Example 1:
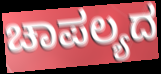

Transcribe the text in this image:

ಚಾಪಲ್ಯದ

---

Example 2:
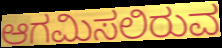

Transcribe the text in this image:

ಆಗಮಿಸಲಿರುವ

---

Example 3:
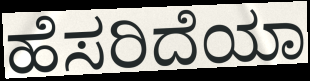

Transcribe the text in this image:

ಹೆಸರಿದೆಯಾ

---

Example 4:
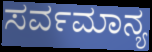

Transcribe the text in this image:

ಸರ್ವಮಾನ್ಯ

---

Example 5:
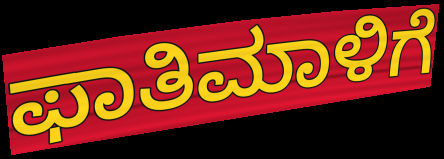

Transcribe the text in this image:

ಫಾತಿಮಾಳಿಗೆ